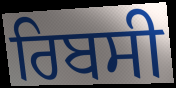
ਰਿਬਸੀ